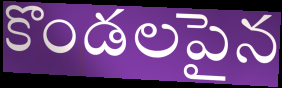
కొండలపైన